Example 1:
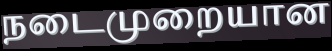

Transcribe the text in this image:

நடைமுறையான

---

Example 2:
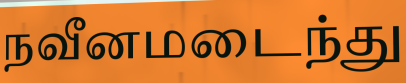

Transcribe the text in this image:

நவீனமடைந்து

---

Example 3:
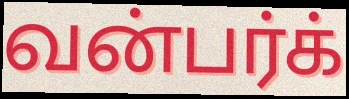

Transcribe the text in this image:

வன்பர்க்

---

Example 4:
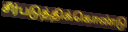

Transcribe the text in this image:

சீர்படுத்திக்கொண்டு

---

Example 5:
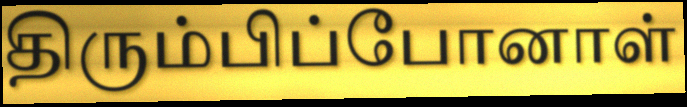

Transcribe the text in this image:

திரும்பிப்போனாள்